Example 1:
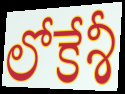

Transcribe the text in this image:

లోకేశీ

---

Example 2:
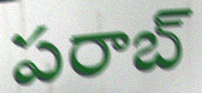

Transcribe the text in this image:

పరాబ్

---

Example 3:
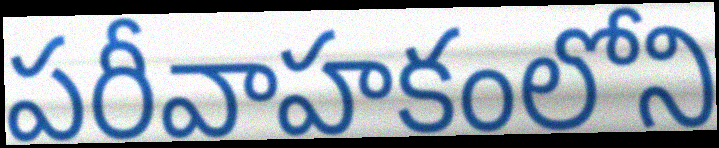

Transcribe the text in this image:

పరీవాహకంలోని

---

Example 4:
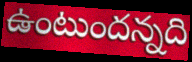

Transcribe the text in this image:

ఉంటుందన్నది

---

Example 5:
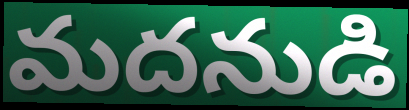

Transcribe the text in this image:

మదనుడి